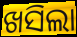
ଖସିଲା